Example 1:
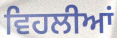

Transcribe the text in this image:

ਵਿਹਲੀਆਂ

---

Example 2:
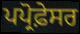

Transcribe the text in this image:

ਪਪ੍ਰੋਫ਼ੇਸਰ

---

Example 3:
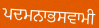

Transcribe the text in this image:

ਪਦਮਨਾਭਸਵਾਮੀ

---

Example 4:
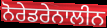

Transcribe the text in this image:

ਨੋਰੇਡਰੇਨਾਲੀਨ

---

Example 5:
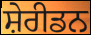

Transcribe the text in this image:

ਸ਼ੇਰੀਡਨ